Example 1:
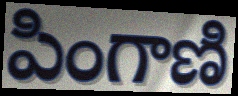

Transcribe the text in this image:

పింగాణి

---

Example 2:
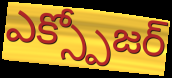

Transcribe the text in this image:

ఎక్స్పోజర్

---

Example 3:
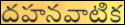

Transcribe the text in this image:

దహనవాటిక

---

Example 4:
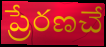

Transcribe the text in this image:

ప్రేరణచే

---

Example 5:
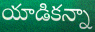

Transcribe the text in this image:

యాడికన్నా